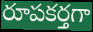
రూపకర్తగా